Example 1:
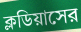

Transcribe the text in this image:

ক্লডিয়াসের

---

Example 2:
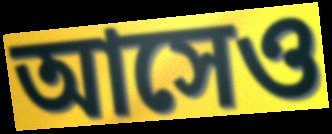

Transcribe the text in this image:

আসেও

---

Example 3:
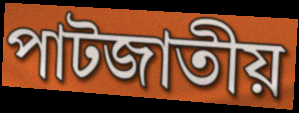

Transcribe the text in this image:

পাটজাতীয়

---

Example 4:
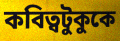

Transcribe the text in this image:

কবিত্বটুকুকে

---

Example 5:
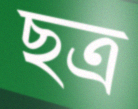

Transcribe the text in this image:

ছত্র